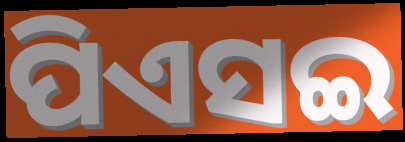
ପିଏସଇ